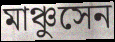
মাঞ্চুসেন